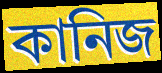
কানিজ